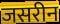
जसरीन